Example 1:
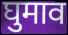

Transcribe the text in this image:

घुमाव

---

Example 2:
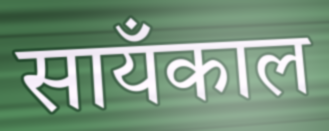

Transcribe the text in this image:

सायँकाल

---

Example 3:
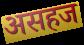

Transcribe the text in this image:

असहज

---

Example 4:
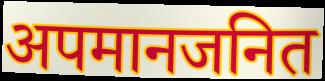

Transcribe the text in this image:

अपमानजनित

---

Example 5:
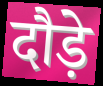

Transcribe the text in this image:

दौड़े